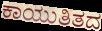
ಕಾಯುತಿತದ